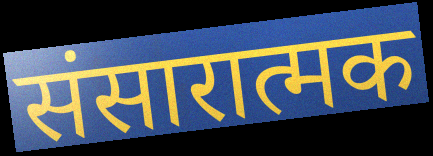
संसारात्मक